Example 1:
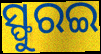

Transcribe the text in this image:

ସ୍ଫୁରଇ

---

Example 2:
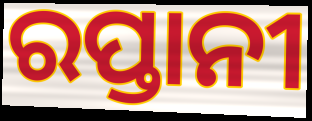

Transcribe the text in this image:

ରପ୍ତାନୀ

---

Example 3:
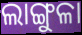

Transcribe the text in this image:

ଲାଙ୍ଗୁଳା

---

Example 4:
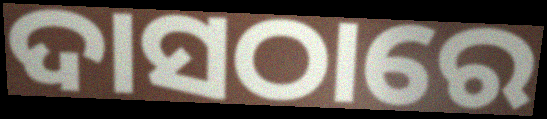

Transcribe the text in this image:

ଦାସଠାରେ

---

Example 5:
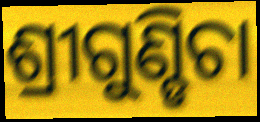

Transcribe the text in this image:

ଶ୍ରୀଗୁଣ୍ଡିଚା